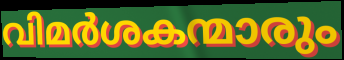
വിമർശകന്മാരും